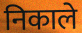
निकाले